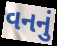
વનનું